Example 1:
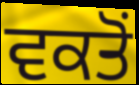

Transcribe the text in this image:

ਵਕਤੋਂ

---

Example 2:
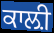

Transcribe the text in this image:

ਕਾਲ਼ੀ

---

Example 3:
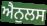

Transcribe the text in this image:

ਐਨੁਲਸ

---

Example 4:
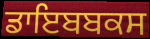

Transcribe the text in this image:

ਡਾਇਬਬਕਸ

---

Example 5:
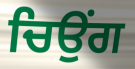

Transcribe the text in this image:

ਚਿਉਂਗ